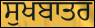
ਸੁਖਬਾਤਰ